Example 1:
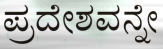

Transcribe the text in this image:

ಪ್ರದೇಶವನ್ನೇ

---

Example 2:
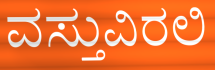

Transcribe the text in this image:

ವಸ್ತುವಿರಲಿ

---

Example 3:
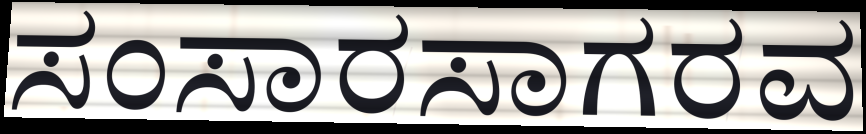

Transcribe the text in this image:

ಸಂಸಾರಸಾಗರವ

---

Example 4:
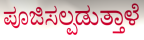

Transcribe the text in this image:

ಪೂಜಿಸಲ್ಪಡುತ್ತಾಳೆ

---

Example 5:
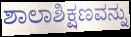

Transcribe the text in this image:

ಶಾಲಾಶಿಕ್ಷಣವನ್ನು